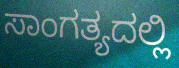
ಸಾಂಗತ್ಯದಲ್ಲಿ